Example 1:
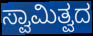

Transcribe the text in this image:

ಸ್ವಾಮಿತ್ವದ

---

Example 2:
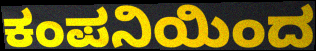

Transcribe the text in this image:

ಕಂಪನಿಯಿಂದ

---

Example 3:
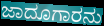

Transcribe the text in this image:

ಜಾದೂಗಾರನು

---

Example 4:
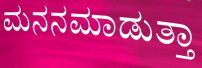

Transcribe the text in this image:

ಮನನಮಾಡುತ್ತಾ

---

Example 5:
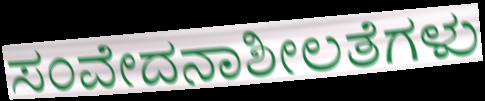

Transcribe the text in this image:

ಸಂವೇದನಾಶೀಲತೆಗಳು